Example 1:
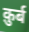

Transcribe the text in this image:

क़ुर्ब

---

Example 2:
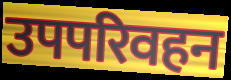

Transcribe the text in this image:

उपपरिवहन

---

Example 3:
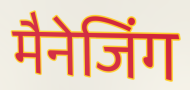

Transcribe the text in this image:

मैनेजिंग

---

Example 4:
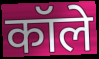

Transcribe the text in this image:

कॉले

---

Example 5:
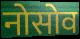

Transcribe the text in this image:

नोसोव